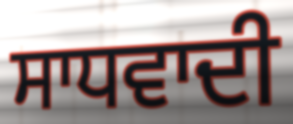
ਸਾਧਵਾਦੀ